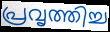
പ്രവൃത്തിച്ച